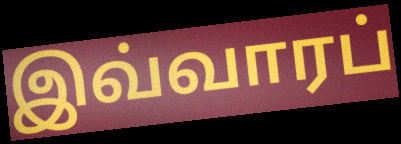
இவ்வாரப்